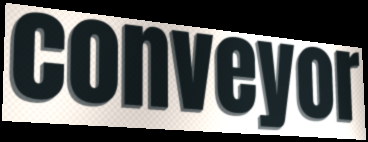
conveyor